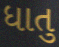
ધાતુ